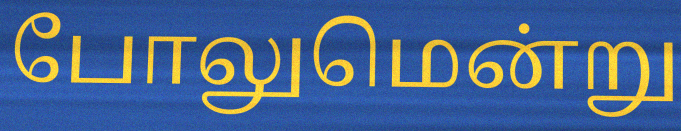
போலுமென்று